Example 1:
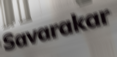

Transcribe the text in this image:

Savarakar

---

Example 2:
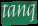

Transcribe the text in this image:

tanq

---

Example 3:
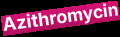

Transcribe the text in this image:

Azithromycin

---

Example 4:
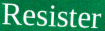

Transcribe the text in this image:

Resister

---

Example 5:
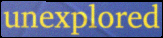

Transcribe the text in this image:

unexplored